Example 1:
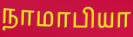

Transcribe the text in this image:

நாமாபியா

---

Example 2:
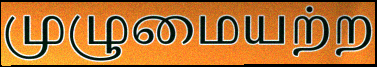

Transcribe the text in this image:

முழுமையற்ற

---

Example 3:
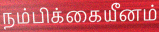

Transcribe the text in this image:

நம்பிக்கையீனம்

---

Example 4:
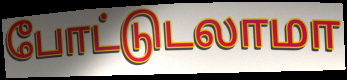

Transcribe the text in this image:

போட்டுடலாமா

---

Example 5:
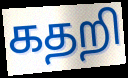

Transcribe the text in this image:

கதறி